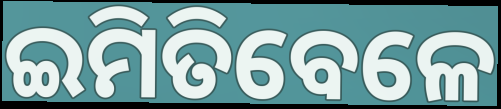
ଇମିତିବେଳେ